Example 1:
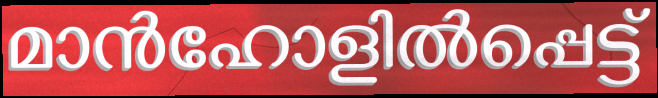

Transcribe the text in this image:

മാൻഹോളിൽപ്പെട്ട്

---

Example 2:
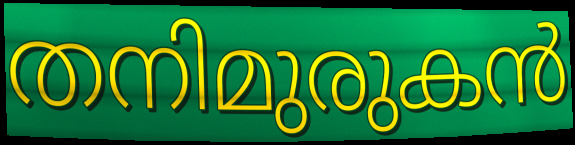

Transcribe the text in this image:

തനിമുരുകൻ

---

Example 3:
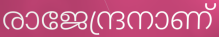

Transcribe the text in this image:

രാജേന്ദ്രനാണ്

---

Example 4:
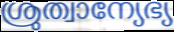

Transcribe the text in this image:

ശ്രുത്വാന്യേഭ്യ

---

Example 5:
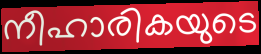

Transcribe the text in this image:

നീഹാരികയുടെ